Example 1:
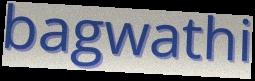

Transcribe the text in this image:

bagwathi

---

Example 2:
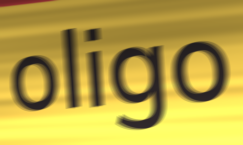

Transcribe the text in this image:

oligo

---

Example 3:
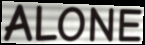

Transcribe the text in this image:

ALONE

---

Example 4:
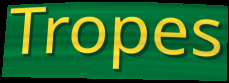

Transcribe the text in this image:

Tropes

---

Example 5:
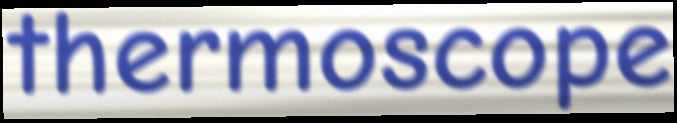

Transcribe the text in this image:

thermoscope